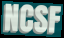
NCSF